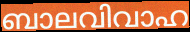
ബാലവിവാഹ